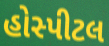
હોસ્પીટલ